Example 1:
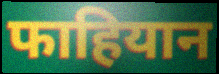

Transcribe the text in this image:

फाहियान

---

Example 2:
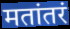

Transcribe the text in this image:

मतांतरं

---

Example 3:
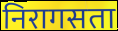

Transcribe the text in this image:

निरागसता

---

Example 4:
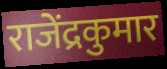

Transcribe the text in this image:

राजेंद्रकुमार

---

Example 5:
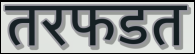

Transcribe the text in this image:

तरफडत